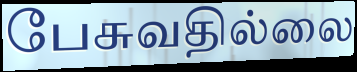
பேசுவதில்லை